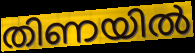
തിണയിൽ